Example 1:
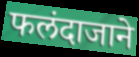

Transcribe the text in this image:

फलंदाजाने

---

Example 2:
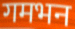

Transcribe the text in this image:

गमभन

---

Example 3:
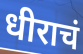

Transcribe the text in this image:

धीराचं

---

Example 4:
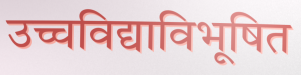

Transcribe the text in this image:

उच्चविद्याविभूषित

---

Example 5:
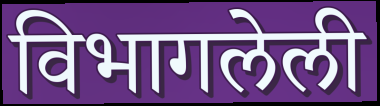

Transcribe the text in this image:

विभागलेली